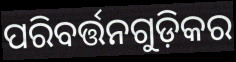
ପରିବର୍ତ୍ତନଗୁଡ଼ିକର